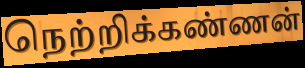
நெற்றிக்கண்ணன்